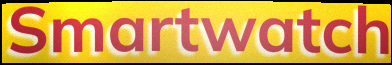
Smartwatch